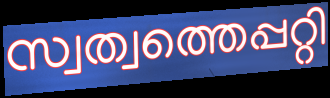
സ്വത്വത്തെപ്പറ്റി